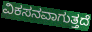
ವಿಕಸನವಾಗುತ್ತದೆ